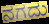
ನಗದು